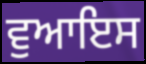
ਵੁਆਇਸ